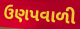
ઉણપવાળી